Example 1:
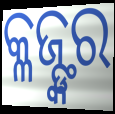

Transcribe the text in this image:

କ୍ଳଜ୍ଙ୍କର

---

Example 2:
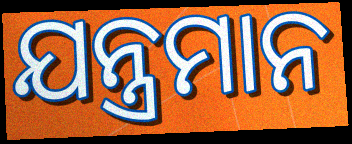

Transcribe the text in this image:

ଯନ୍ତ୍ରମାନ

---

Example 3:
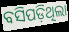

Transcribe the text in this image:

ବସିପଡ଼ିଥିଲା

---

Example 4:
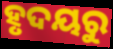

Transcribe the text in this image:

ହୃଦୟରୁ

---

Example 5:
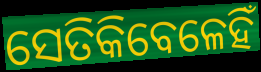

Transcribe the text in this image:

ସେତିକିବେଳେହିଁ